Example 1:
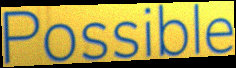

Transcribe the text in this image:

Possible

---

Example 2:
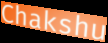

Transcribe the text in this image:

Chakshu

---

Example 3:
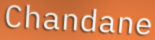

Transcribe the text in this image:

Chandane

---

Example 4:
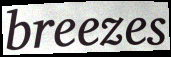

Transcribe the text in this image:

breezes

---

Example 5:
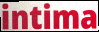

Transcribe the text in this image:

intima